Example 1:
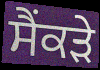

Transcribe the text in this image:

ਸੈਂਕੜੇ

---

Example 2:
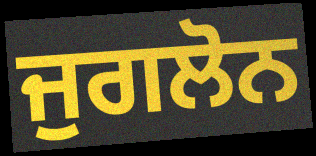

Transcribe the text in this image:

ਜੁਗਲੋਨ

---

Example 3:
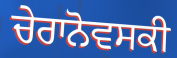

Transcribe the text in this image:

ਚੇਰਾਨੋਵਸਕੀ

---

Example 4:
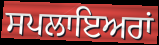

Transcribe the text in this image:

ਸਪਲਾਇਅਰਾਂ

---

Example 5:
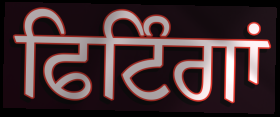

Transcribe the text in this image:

ਫਿਟਿੰਗਾਂ